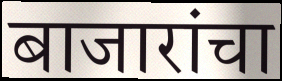
बाजारांचा